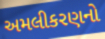
અમલીકરણનો